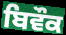
ਬਿਵੌਕ